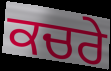
ਕਚਰੇ